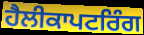
ਹੈਲੀਕਾਪਟਰਿੰਗ